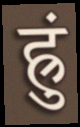
ह्रुं